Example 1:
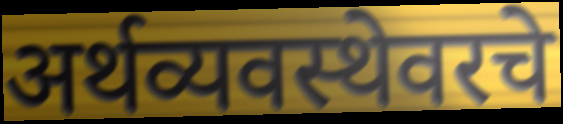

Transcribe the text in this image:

अर्थव्यवस्थेवरचे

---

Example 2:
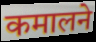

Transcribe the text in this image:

कमालने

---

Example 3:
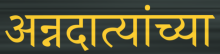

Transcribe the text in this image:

अन्नदात्यांच्या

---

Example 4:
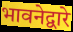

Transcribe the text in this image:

भावनेद्वारे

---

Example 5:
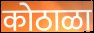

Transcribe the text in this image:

कोठाळा